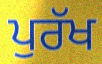
ਪੁਰੱਖ